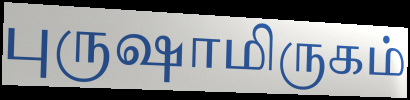
புருஷாமிருகம்